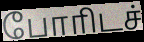
போரிடச்